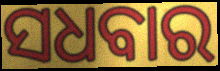
ସଧବାର